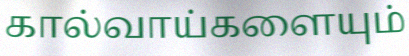
கால்வாய்களையும்